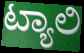
ಟ್ಯಾಲಿ